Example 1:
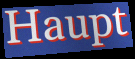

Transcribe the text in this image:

Haupt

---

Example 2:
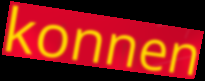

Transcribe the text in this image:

konnen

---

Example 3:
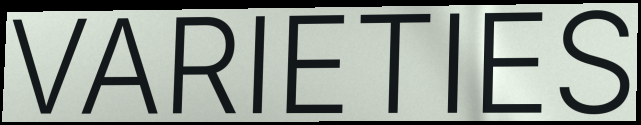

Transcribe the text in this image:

VARIETIES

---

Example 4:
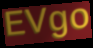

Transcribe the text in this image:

EVgo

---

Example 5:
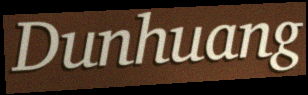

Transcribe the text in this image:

Dunhuang